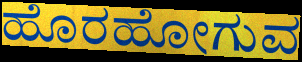
ಹೊರಹೋಗುವ